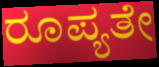
ರೂಪ್ಯತೇ